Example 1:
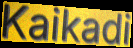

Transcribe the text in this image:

Kaikadi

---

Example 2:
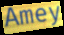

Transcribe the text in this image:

Amey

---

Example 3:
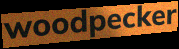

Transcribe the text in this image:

woodpecker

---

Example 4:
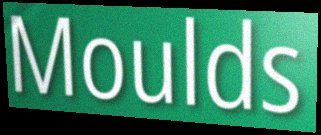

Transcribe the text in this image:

Moulds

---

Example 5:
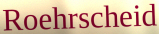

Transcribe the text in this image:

Roehrscheid